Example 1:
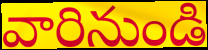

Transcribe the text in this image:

వారినుండి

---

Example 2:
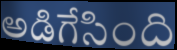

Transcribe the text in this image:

అడిగేసింది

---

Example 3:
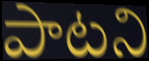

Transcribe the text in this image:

పాటని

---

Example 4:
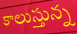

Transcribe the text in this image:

కాలుస్తున్న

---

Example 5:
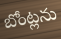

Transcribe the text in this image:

బోంట్లను